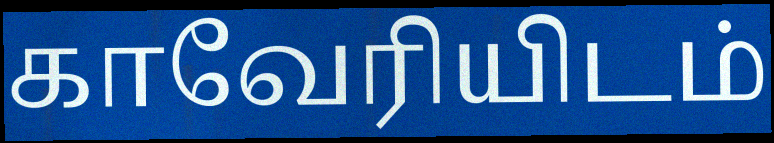
காவேரியிடம்